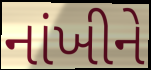
નાંખીને